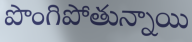
పొంగిపోతున్నాయి